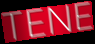
TENE